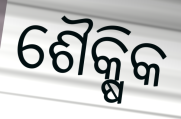
ଶୈକ୍ଷିକ